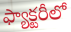
ఫ్యాక్టరీలో